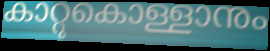
കാറ്റുകൊള്ളാനും